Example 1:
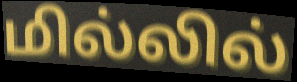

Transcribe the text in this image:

மில்லில்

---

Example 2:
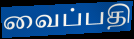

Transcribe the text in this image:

வைப்பதி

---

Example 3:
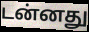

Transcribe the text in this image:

டன்னது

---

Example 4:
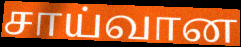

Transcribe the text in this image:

சாய்வான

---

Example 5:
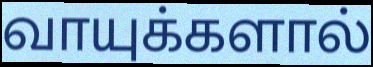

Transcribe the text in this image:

வாயுக்களால்